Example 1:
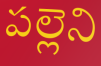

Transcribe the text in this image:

పల్లెని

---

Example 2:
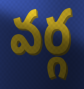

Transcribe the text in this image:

వర్గ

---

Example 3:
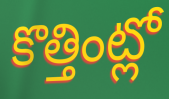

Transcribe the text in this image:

కొత్తింట్లో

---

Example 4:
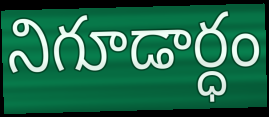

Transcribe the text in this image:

నిగూడార్ధం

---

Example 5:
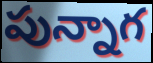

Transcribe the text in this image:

పున్నాగ